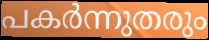
പകർന്നുതരും